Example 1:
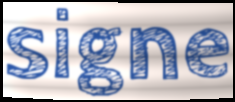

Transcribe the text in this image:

signe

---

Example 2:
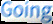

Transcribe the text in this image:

Going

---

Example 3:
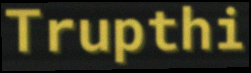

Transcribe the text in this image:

Trupthi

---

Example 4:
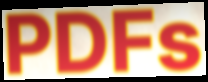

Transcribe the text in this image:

PDFs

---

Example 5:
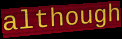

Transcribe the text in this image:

although